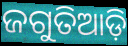
ଜଗୁତିଆଡ଼ି